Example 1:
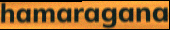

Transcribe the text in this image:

hamaragana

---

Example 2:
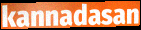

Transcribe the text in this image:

kannadasan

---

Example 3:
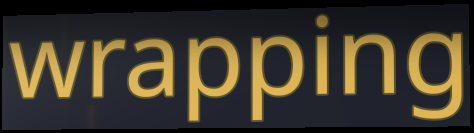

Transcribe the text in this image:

wrapping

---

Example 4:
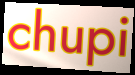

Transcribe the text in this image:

chupi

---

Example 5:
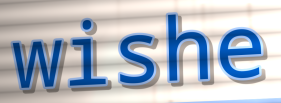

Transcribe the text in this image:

wishe